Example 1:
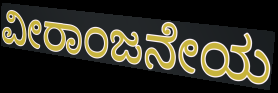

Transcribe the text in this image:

ವೀರಾಂಜನೇಯ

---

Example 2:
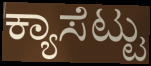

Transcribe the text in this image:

ಕ್ಯಾಸೆಟ್ಟು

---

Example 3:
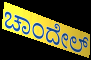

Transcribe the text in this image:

ಚಾಂದೇಲ್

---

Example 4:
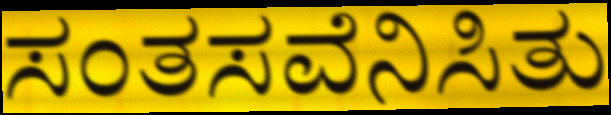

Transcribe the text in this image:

ಸಂತಸವೆನಿಸಿತು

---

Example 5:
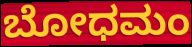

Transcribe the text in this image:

ಬೋಧಮಂ